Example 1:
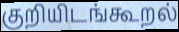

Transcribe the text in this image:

குறியிடங்கூறல்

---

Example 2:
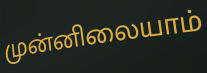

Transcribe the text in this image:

முன்னிலையாம்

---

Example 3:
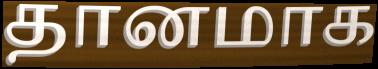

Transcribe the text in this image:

தானமாக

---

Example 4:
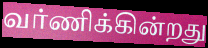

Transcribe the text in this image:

வர்ணிக்கின்றது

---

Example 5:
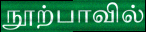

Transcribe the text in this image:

நூற்பாவில்